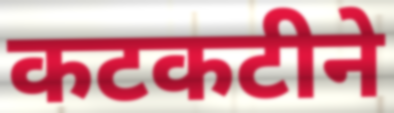
कटकटीने